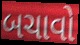
બચાવો